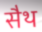
सैथ